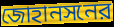
জোহানসনের